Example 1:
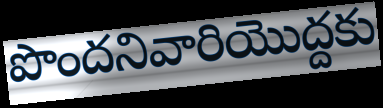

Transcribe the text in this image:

పొందనివారియొద్దకు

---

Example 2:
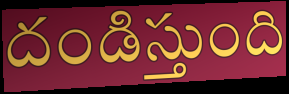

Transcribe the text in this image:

దండిస్తుంది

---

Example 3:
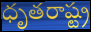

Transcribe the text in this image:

ధృతరాష్ట్ర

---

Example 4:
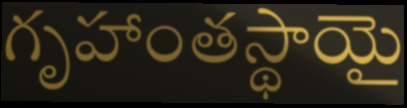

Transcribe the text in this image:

గృహాంతస్థాయై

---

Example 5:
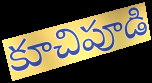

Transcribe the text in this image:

కూచిపూడి